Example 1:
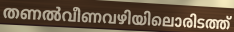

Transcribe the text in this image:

തണൽവീണവഴിയിലൊരിടത്ത്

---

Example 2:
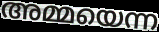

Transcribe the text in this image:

അമ്മയെന്ന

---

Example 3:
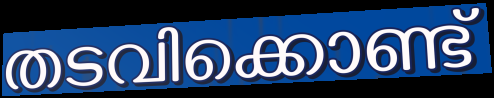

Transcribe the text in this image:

തടവിക്കൊണ്ട്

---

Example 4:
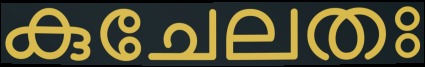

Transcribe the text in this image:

കുചേലതഃ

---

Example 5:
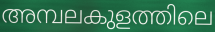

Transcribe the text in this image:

അമ്പലകുളത്തിലെ